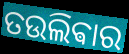
ତଉଲିଵାର